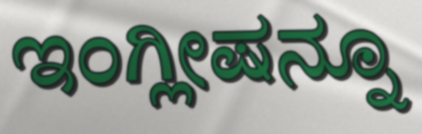
ಇಂಗ್ಲೀಷನ್ನೂ